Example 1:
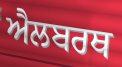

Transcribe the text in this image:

ਐਲਬਰਥ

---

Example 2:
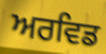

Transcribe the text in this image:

ਅਰਵਿਡ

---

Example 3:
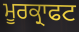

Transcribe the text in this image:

ਮੂਰਕ੍ਰਾਫਟ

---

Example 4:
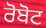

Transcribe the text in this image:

ਰੋਬੋਟ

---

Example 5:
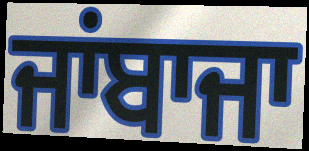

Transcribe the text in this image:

ਜਾਂਬਾਜਾ